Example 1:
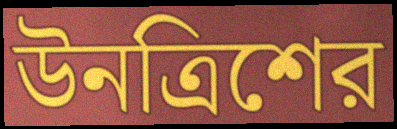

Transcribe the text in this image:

উনত্রিশের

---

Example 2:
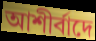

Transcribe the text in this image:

আশীর্বাদে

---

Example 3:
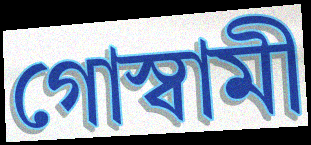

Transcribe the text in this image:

গোস্বামী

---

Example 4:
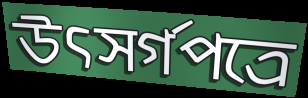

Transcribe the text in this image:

উৎসর্গপত্রে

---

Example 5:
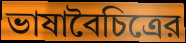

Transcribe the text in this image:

ভাষাবৈচিত্রের